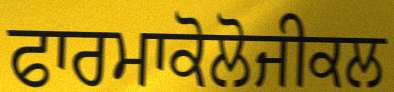
ਫਾਰਮਾਕੋਲੋਜੀਕਲ